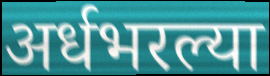
अर्धभरल्या